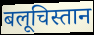
बलूचिस्तान